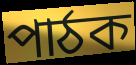
পাঠক